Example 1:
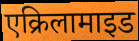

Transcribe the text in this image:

एक्रिलामाइड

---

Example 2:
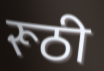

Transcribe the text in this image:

रूठी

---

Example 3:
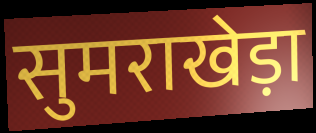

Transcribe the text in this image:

सुमराखेड़ा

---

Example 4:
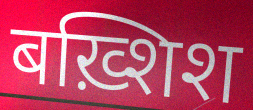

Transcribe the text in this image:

बख़्शिश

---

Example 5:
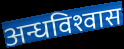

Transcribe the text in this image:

अन्धविश्वास